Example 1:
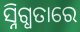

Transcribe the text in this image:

ସ୍ନିଗ୍ଧତାରେ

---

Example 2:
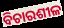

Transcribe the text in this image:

ବିଚାରଶୀଳ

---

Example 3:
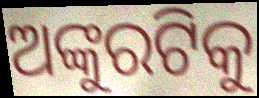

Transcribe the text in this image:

ଅଙ୍କୁରଟିକୁ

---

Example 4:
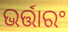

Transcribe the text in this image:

ଭର୍ତ୍ତାରଂ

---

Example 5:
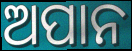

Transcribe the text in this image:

ଅପାନ